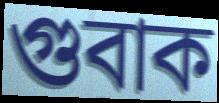
গুবাক